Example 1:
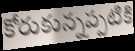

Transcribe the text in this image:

కోరుకున్నప్పటికి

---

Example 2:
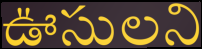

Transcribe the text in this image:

ఊసులని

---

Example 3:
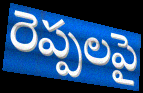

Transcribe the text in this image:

రెప్పలపై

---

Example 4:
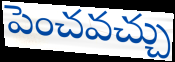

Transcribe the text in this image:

పెంచవచ్చు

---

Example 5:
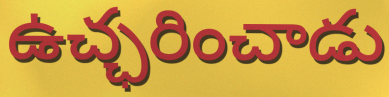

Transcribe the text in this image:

ఉచ్ఛరించాడు